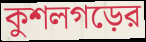
কুশলগড়ের